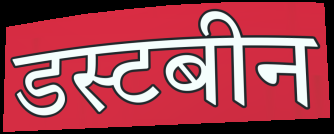
डस्टबीन